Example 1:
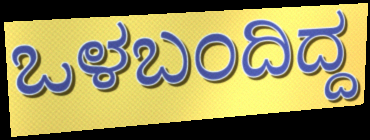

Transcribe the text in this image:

ಒಳಬಂದಿದ್ದ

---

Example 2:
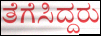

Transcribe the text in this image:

ತೆಗೆಸಿದ್ದರು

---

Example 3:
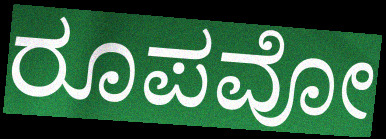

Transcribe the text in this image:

ರೂಪವೋ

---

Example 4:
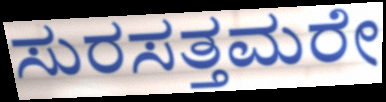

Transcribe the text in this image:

ಸುರಸತ್ತಮರೇ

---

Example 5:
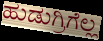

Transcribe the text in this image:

ಹುಡುಗ್ರಿಗೆಲ್ಲ